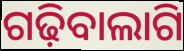
ଗଢ଼ିବାଲାଗି